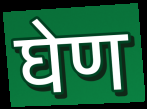
घेण